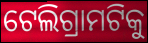
ଟେଲିଗ୍ରାମଟିକୁ